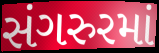
સંગરુરમાં